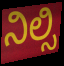
ನಿಲ್ಸಿ